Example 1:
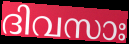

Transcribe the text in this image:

ദിവസാഃ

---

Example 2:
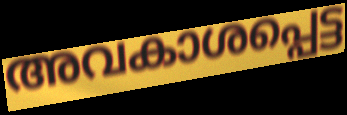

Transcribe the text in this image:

അവകാശപ്പെട്ട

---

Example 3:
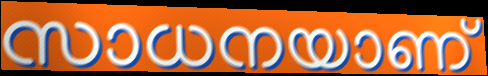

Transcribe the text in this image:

സാധനയാണ്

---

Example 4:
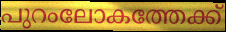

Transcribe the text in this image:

പുറംലോകത്തേക്ക്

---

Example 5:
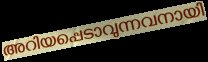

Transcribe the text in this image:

അറിയപ്പെടാവുന്നവനായി